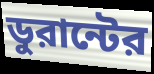
ডুরান্টের